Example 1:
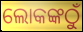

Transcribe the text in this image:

ଲୋକଙ୍କଠୁଁ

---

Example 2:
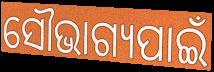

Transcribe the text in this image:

ସୌଭାଗ୍ୟପାଇଁ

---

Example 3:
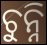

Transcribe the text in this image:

ଚୁନ୍ନି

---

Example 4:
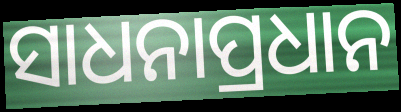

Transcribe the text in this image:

ସାଧନାପ୍ରଧାନ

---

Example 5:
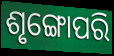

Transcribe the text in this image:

ଶୃଙ୍ଗୋପରି